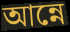
আন্নে